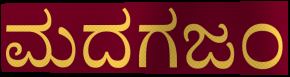
ಮದಗಜಂ